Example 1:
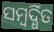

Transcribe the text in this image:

ସମ୍ବର୍ଦ୍ଧିତ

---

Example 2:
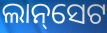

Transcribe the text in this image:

ଲାନ୍‌ସେଟ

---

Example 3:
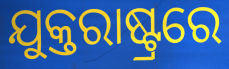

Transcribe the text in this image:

ଯୁକ୍ତରାଷ୍ଟ୍ରରେ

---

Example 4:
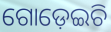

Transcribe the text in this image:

ଗୋଡ଼େଇଚି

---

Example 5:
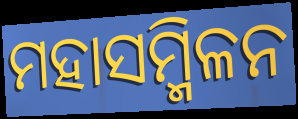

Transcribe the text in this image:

ମହାସମ୍ମିଳନ